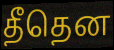
தீதென